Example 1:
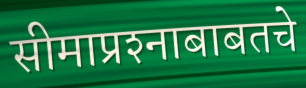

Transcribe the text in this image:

सीमाप्रश्नाबाबतचे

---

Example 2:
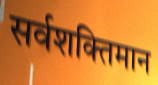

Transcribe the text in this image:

सर्वशक्‍तिमान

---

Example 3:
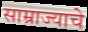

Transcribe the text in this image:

साम्राज्याचे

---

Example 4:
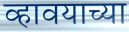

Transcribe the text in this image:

व्हावयाच्या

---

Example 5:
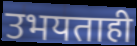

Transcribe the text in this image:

उभयताही